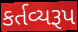
કર્તવ્યરૂપ